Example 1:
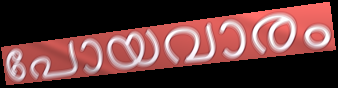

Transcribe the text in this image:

പോയവാരം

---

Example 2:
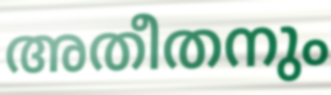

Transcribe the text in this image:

അതീതനും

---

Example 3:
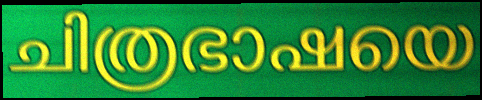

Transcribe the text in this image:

ചിത്രഭാഷയെ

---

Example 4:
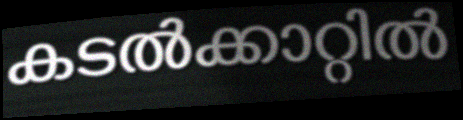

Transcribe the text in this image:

കടൽക്കാറ്റിൽ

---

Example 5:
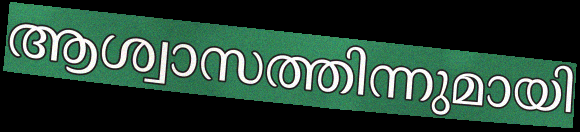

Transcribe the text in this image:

ആശ്വാസത്തിന്നുമായി